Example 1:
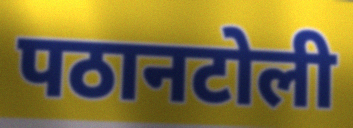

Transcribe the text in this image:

पठानटोली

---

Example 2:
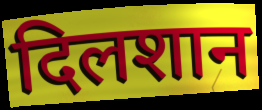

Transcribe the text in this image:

दिलशान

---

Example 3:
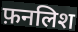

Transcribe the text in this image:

फ़नलिश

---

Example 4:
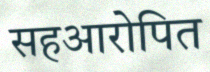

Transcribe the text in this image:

सहआरोपित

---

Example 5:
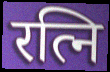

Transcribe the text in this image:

रत्नि